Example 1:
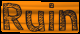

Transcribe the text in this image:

Ruin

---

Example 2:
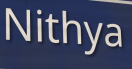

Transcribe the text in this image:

Nithya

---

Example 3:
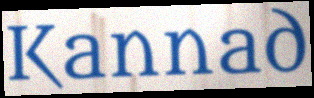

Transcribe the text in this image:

Kannad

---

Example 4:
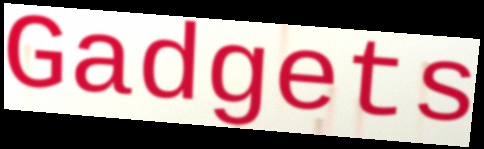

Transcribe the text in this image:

Gadgets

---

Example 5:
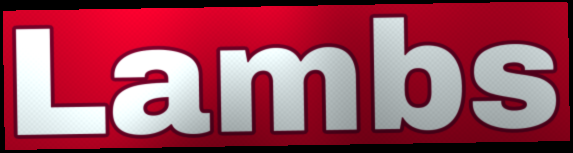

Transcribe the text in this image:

Lambs